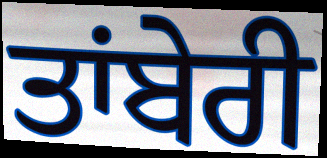
ਤਾਂਬੇਰੀ